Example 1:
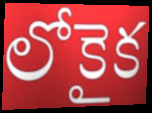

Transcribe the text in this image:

లోకైక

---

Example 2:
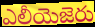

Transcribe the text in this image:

ఎలీయెజెరు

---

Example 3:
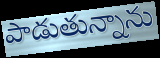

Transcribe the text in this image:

పాడుతున్నాను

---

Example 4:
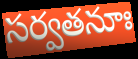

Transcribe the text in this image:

సర్వతనూః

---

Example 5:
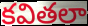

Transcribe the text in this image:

కవితలా